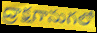
ద్రాక్షగానుగలో